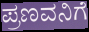
ಪ್ರಣವನಿಗೆ